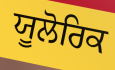
ਯੂਲੋਰਿਕ